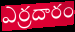
ఎర్రదారం